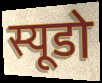
स्यूडो